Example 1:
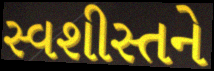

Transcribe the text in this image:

સ્વશીસ્તને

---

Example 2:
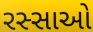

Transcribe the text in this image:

રસ્સાઓ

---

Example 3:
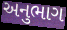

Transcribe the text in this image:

અનુભાગ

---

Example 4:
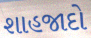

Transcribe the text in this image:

શાહજાદો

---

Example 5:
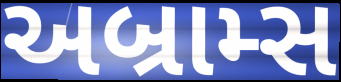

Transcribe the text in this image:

અબ્રામ્સ